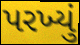
પરખ્યું